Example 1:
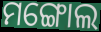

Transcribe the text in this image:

ମଙ୍ଗୋଲ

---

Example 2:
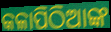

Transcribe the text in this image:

କଳାପିଠିଆଙ୍କ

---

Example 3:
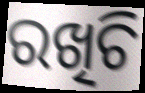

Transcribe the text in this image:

ରଖିଚି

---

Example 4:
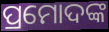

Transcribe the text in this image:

ପ୍ରମୋଦଙ୍କ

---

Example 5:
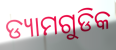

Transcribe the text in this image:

ଡ୍ୟାମଗୁଡିକ